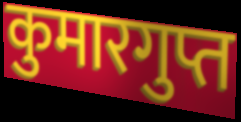
कुमारगुप्त